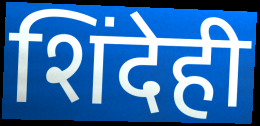
शिंदेही